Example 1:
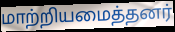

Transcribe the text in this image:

மாற்றியமைத்தனர்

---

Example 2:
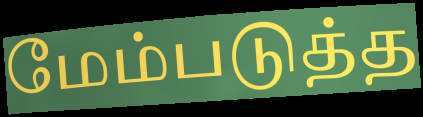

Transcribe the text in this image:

மேம்படுத்த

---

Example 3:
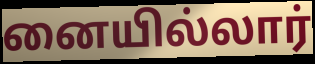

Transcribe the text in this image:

னையில்லார்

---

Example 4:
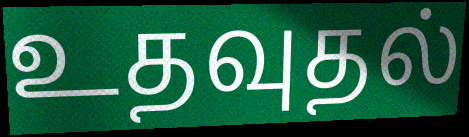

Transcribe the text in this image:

உதவுதல்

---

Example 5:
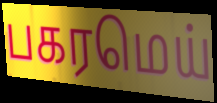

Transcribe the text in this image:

பகரமெய்